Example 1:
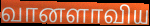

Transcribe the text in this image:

வானளாவிய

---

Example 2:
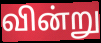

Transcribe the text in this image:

வின்று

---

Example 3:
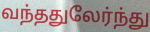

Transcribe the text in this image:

வந்ததுலேர்ந்து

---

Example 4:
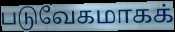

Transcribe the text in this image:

படுவேகமாகக்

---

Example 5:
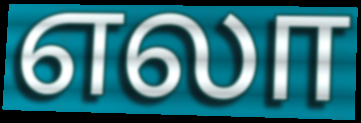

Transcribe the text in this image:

எலா